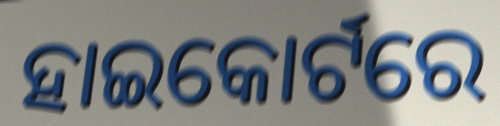
ହାଇକୋର୍ଟରେ